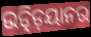
ଉଡ଼୍ଡ଼ିୟାନର